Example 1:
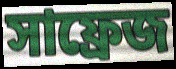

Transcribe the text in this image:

সাফ্রেজ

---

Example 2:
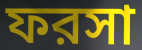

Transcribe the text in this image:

ফরসা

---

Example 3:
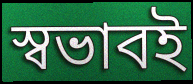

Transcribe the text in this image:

স্বভাবই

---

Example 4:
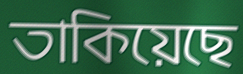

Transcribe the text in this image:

তাকিয়েছে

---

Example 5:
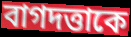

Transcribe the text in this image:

বাগদত্তাকে